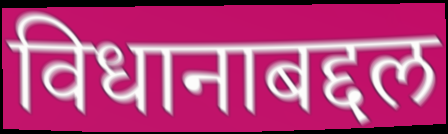
विधानाबद्दल